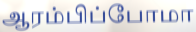
ஆரம்பிப்போமா